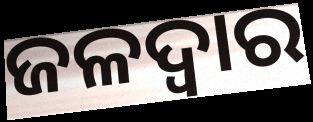
ଜଳଦ୍ୱାର